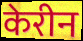
केरीन